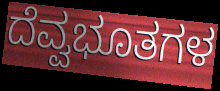
ದೆವ್ವಭೂತಗಳ